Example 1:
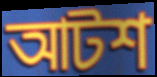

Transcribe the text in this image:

আটশ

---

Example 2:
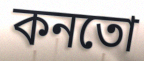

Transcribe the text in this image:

কনতো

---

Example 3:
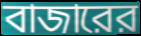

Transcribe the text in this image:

বাজারের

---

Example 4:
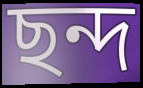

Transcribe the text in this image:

ছন্দ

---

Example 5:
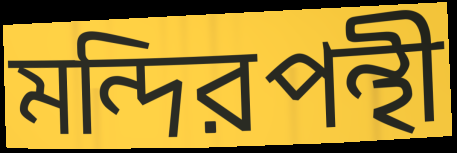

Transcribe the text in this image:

মন্দিরপন্থী